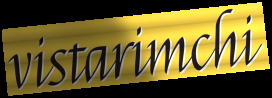
vistarimchi